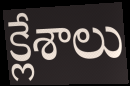
క్లేశాలు